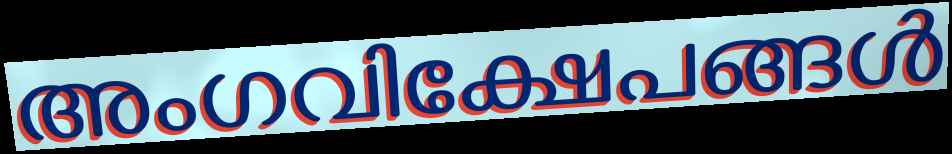
അംഗവിക്ഷേപങ്ങൾ